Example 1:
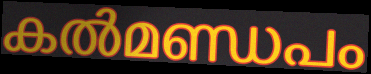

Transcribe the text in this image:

കൽമണ്ഡപം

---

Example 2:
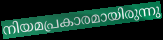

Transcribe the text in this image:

നിയമപ്രകാരമായിരുന്നു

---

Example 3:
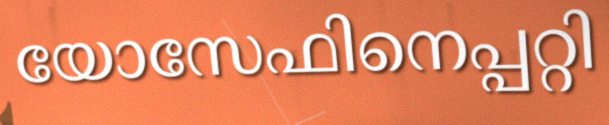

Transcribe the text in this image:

യോസേഫിനെപ്പറ്റി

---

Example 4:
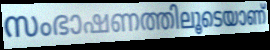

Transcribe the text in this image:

സംഭാഷണത്തിലൂടെയാണ്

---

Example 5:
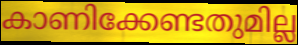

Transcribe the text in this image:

കാണിക്കേണ്ടതുമില്ല